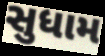
સુધામ